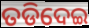
ତଡିଦେଇ